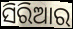
ସିରିଆର